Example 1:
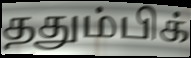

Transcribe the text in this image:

ததும்பிக்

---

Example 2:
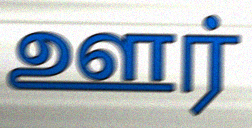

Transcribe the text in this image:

ஊர்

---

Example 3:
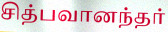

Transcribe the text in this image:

சித்பவானந்தர்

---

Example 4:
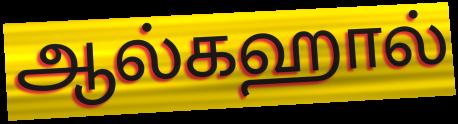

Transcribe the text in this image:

ஆல்கஹால்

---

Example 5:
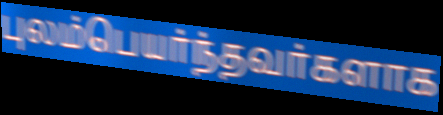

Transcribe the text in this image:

புலம்பெயர்ந்தவர்களாக